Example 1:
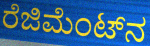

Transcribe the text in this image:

ರೆಜಿಮೆಂಟ್‌ನ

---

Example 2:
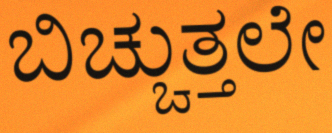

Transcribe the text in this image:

ಬಿಚ್ಚುತ್ತಲೇ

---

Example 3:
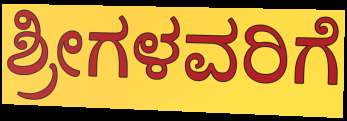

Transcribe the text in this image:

ಶ್ರೀಗಳವರಿಗೆ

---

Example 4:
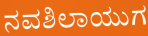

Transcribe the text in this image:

ನವಶಿಲಾಯುಗ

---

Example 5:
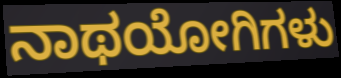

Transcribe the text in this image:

ನಾಥಯೋಗಿಗಳು